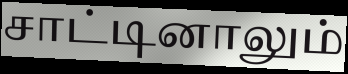
சாட்டினாலும்